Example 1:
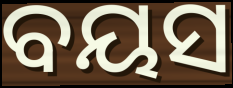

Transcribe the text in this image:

ବୟସ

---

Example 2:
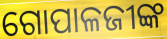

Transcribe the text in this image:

ଗୋପାଳଜୀଙ୍କ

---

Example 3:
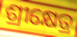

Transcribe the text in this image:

ଶ୍ରୀକ୍ଷେତ୍ର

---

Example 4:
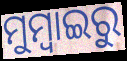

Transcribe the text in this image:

ମୁମ୍ବାଇରୁ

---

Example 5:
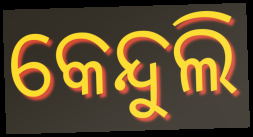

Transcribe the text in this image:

କେନ୍ଦୁଲି